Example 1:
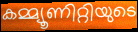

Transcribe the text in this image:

കമ്മ്യൂണിറ്റിയുടെ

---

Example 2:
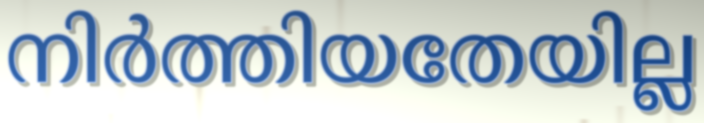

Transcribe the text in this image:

നിർത്തിയതേയില്ല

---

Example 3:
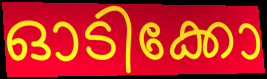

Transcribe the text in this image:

ഓടിക്കോ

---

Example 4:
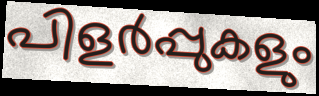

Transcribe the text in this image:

പിളർപ്പുകളും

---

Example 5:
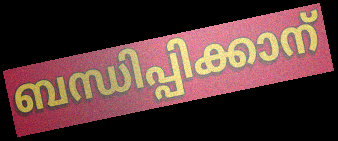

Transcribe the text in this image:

ബന്ധിപ്പിക്കാന്